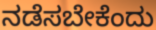
ನಡೆಸಬೇಕೆಂದು